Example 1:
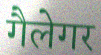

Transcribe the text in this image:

गैलेगर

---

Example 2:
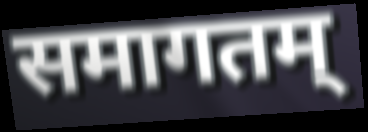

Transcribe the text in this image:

समागतम्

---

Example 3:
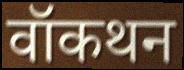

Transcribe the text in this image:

वॉकथन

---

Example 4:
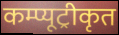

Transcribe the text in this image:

कम्प्यूट्रीकृत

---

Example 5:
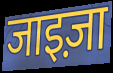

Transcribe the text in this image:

जाइज़ा